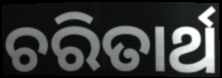
ଚରିତାର୍ଥ